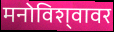
मनोविश्वावर